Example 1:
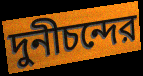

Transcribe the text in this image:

দুনীচন্দের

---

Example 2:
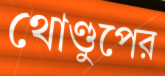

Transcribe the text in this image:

থোণ্ডুপের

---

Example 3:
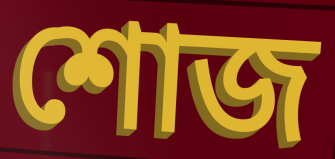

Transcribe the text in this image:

শোজ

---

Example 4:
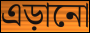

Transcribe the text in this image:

এড়ানো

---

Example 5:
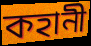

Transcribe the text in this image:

কহানী